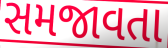
સમજાવતા